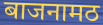
बाजनामठ